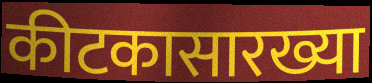
कीटकासारख्या